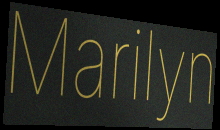
Marilyn